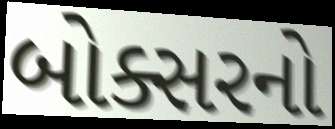
બોક્સરનો